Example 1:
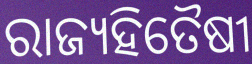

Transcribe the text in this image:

ରାଜ୍ୟହିତୈଷୀ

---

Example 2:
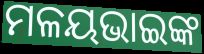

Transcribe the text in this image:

ମଳୟଭାଇଙ୍କ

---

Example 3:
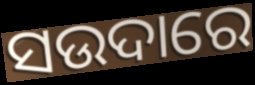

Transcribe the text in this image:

ସଉଦାରେ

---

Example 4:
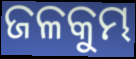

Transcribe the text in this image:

ଜଳକୁମ୍ଭ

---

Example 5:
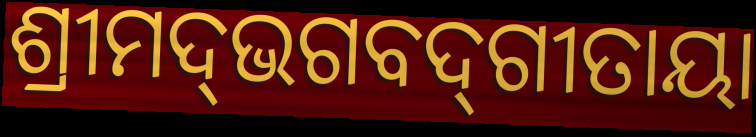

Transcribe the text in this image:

ଶ୍ରୀମଦ୍‌ଭଗବଦ୍‌ଗୀତାୟା